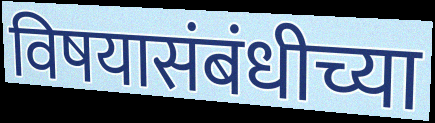
विषयासंबंधीच्या